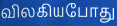
விலகியபோது